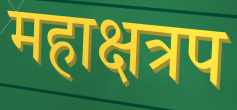
महाक्षत्रप